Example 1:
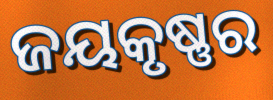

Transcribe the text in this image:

ଜୟକୃଷ୍ଣର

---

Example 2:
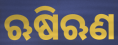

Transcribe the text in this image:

ଋଷିଋଣ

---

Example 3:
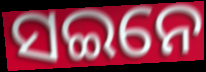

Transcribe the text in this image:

ସଇନେ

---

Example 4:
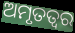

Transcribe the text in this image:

ଅମୃତତ୍ଵର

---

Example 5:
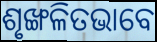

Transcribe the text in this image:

ଶୃଙ୍ଖଳିତଭାବେ